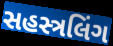
સહસ્ત્રલિંગ